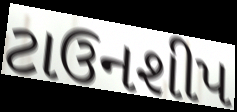
ટાઉનશીપ